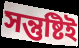
সন্তুষ্টিই